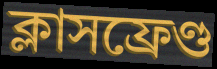
ক্লাসফ্রেণ্ড